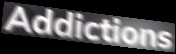
Addictions